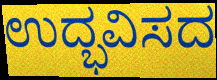
ಉದ್ಭವಿಸದ